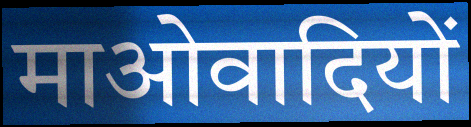
माओवादियों